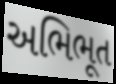
અભિભૂત